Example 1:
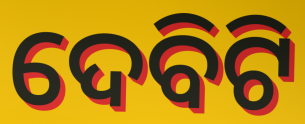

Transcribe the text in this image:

ଦେବିଟି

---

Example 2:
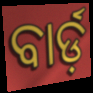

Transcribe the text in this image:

ବାର୍ଡ଼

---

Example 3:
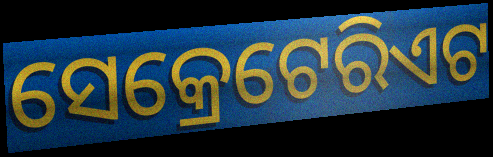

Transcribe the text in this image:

ସେକ୍ରେଟେରିଏଟ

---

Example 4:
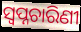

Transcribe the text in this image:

ସ୍ୱପ୍ନଚାରିଣୀ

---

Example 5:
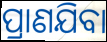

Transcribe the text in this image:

ପ୍ରାଣଯିବା